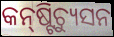
କନ୍‍ଷ୍ଟିଚ୍ୟୁସନ